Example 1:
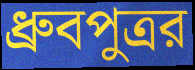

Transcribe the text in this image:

ধ্রুবপুত্রর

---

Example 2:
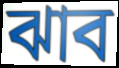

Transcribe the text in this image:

ঝাব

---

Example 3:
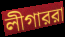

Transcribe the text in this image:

লীগাররা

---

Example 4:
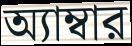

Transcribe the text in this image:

অ্যাম্বার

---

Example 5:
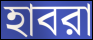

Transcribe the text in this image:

হাবরা